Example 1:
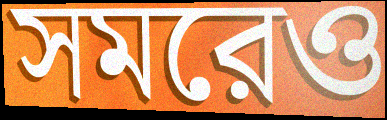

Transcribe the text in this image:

সমরেও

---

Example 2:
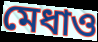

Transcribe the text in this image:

মেধাও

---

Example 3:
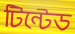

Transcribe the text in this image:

টিন্টেড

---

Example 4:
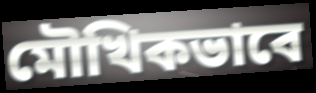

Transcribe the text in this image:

মৌখিকভাবে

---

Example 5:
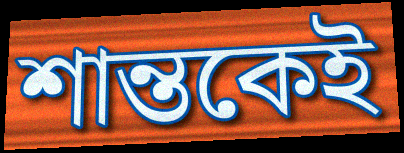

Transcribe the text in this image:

শান্তকেই